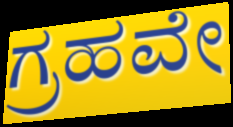
ಗ್ರಹವೇ